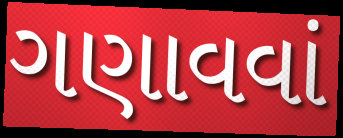
ગણાવવાં